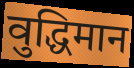
वुद्धिमान